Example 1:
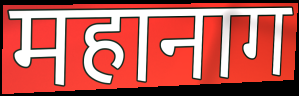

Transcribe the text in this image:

महानाग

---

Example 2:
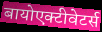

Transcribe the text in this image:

बायोएक्टीवेटर्स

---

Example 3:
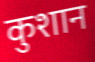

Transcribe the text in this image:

कुशान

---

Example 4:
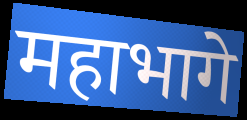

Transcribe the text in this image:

महाभागे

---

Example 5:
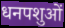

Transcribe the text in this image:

धनपशुओं